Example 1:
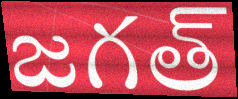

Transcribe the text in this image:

జగత్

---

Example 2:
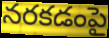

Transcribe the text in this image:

నరకడంపై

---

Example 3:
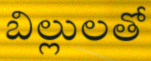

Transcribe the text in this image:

బిల్లులతో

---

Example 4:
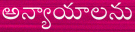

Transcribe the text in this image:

అన్యాయాలను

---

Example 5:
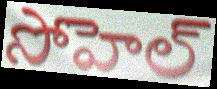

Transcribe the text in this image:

సోహెల్